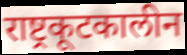
राष्ट्रकूटकालीन